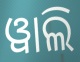
ୱାଲି